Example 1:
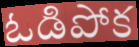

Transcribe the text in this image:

ఓడిపోక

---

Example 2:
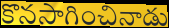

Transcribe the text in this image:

కొనసాగించినాడు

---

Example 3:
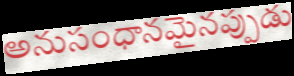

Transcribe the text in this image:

అనుసంధానమైనప్పుడు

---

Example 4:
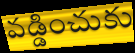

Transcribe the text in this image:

వడ్డించుకు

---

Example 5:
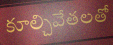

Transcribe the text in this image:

కూల్చివేతలతో